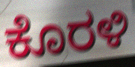
ಕೊರಳಿ